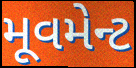
મૂવમેન્ટ